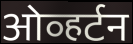
ओव्हर्टन